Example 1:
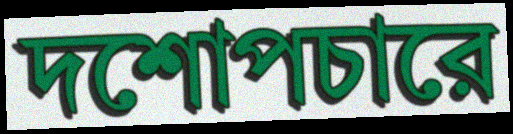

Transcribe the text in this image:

দশোপচারে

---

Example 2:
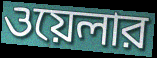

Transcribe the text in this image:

ওয়েলার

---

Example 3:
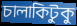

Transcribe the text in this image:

চালাকিটুকু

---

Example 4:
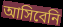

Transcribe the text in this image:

আসিবেনি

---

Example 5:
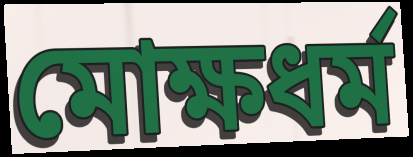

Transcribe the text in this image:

মোক্ষধর্ম